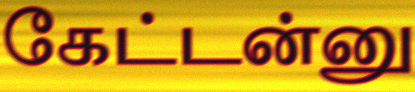
கேட்டன்னு